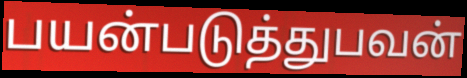
பயன்படுத்துபவன்